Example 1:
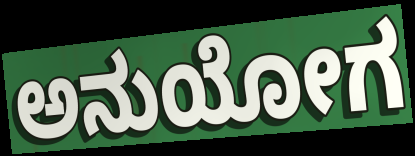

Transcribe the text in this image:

ಅನುಯೋಗ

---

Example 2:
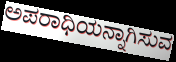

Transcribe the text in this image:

ಅಪರಾಧಿಯನ್ನಾಗಿಸುವ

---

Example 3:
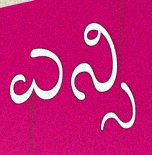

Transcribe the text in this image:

ಎನ್ಸಿ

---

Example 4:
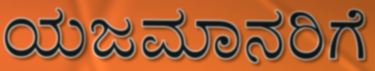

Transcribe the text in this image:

ಯಜಮಾನರಿಗೆ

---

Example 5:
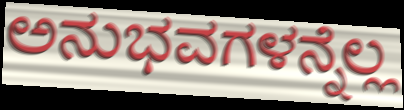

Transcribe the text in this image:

ಅನುಭವಗಳನ್ನೆಲ್ಲ